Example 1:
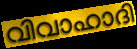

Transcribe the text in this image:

വിവാഹാദി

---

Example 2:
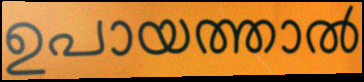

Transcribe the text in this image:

ഉപായത്താൽ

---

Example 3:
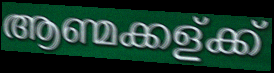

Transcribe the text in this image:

ആണ്മക്കള്ക്ക്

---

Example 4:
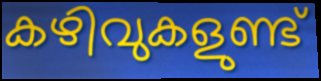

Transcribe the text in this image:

കഴിവുകളുണ്ട്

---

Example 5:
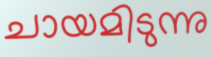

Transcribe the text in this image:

ചായമിടുന്നു